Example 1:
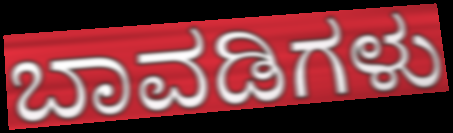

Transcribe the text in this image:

ಬಾವಡಿಗಳು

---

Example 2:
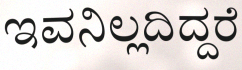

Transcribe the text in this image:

ಇವನಿಲ್ಲದಿದ್ದರೆ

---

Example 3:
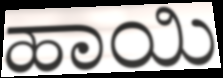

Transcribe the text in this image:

ಹಾಯಿ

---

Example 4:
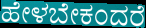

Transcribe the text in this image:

ಹೇಳಬೇಕಂದರೆ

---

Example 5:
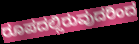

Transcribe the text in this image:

ರೂಪದಲ್ಲಿರುವುದರಿಂದ